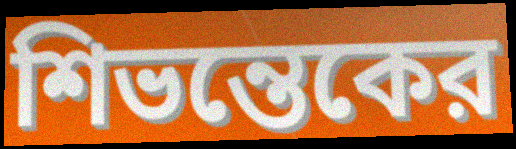
শিভন্তেকের